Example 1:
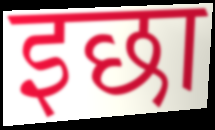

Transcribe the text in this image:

इछा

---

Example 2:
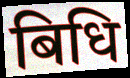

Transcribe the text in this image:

बिधि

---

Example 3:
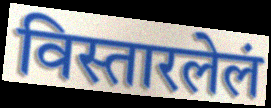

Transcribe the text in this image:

विस्तारलेलं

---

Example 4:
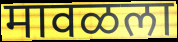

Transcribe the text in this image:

मावळला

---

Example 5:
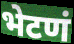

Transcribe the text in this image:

भेटणं